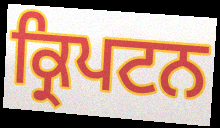
ਕ੍ਰਿਪਟਨ